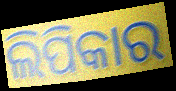
ଲିପିକାର